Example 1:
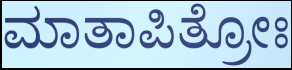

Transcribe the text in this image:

ಮಾತಾಪಿತ್ರೋಃ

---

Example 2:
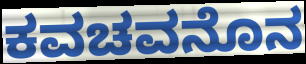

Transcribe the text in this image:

ಕವಚವನೊನ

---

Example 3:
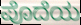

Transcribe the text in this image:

ಪೊದೆಯ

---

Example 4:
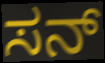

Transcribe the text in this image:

ಸನ್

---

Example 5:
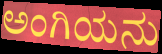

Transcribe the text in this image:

ಅಂಗಿಯನು